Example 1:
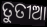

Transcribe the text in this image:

ତୁତୀଆ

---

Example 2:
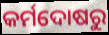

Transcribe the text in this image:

କର୍ମଦୋଷରୁ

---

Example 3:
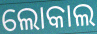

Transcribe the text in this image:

ଲୋକାଲ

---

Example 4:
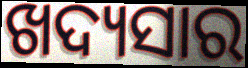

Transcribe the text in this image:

ଖଦ୍ୟସାର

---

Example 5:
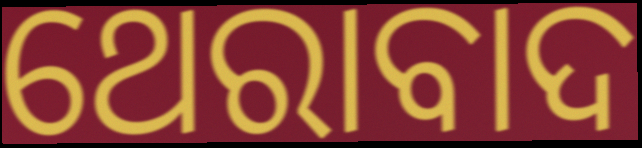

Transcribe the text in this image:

ଥେରାବାଦ